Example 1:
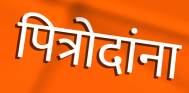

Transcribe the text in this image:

पित्रोदांना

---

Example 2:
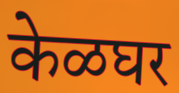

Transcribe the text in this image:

केळघर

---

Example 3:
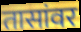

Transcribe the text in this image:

तासांवर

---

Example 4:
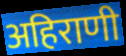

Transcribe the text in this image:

अहिराणी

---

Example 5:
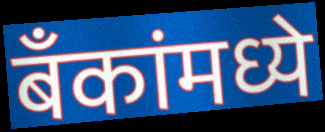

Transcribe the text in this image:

बँकांमध्ये